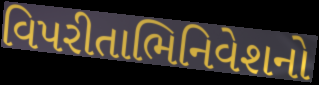
વિપરીતાભિનિવેશનો